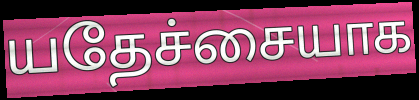
யதேச்சையாக